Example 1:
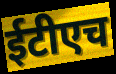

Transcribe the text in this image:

ईटीएच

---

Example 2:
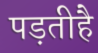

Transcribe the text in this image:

पड़तीहै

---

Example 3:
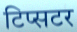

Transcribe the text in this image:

टिप्सटर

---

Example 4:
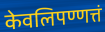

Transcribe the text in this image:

केवलिपण्णत्तं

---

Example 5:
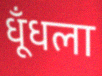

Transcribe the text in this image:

धूँधला